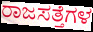
ರಾಜಸತ್ತೆಗಳ